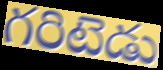
గరిటెడు